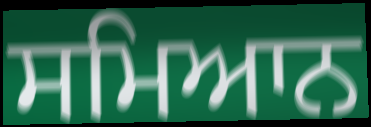
ਸਮਿਆਨ